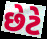
છેટે